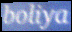
boliya